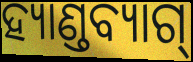
ହ୍ୟାଣ୍ଡବ୍ୟାଗ୍